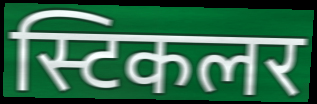
स्टिकलर